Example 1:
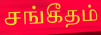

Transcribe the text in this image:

சங்கீதம்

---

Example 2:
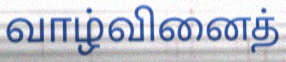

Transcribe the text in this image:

வாழ்வினைத்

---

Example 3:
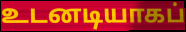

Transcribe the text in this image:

உடனடியாகப்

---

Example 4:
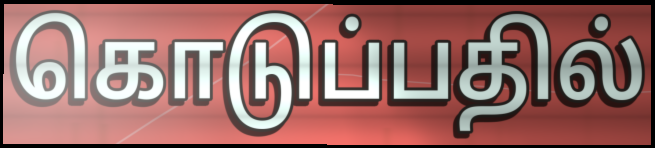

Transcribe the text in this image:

கொடுப்பதில்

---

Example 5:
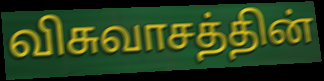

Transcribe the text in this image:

விசுவாசத்தின்